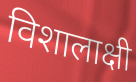
विशालाक्षी